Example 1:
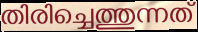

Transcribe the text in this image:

തിരിച്ചെത്തുന്നത്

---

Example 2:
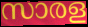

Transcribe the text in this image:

സാരള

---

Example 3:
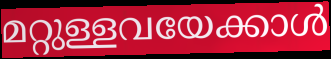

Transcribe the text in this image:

മറ്റുള്ളവയേക്കാൾ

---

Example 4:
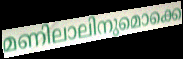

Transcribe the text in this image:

മണിലാലിനുമൊക്കെ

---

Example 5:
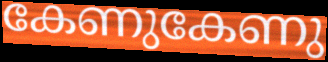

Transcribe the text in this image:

കേണുകേണു